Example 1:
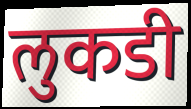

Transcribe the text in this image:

लुकडी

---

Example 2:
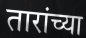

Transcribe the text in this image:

तारांच्या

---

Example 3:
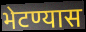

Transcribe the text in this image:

भेटण्यास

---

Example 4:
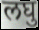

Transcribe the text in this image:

लघु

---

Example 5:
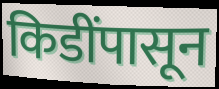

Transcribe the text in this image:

किडींपासून